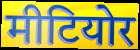
मीटियोर